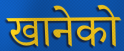
खानेको